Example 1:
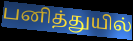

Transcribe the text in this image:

பனித்துயில்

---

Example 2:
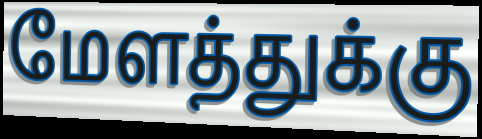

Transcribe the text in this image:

மேளத்துக்கு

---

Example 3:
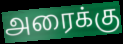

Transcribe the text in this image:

அரைக்கு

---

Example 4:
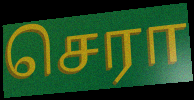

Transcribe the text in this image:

செரா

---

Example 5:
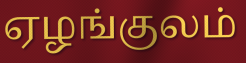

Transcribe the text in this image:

ஏழங்குலம்